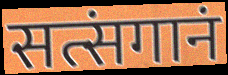
सत्संगानं